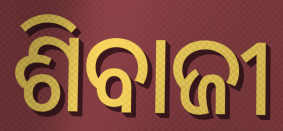
ଶିବାଜୀ